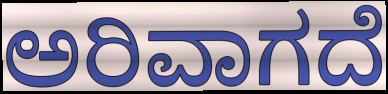
ಅರಿವಾಗದೆ